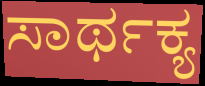
ಸಾರ್ಥಕ್ಯ